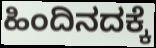
ಹಿಂದಿನದಕ್ಕೆ